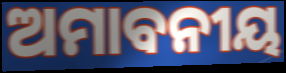
ଅମାବନୀୟ